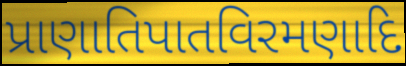
પ્રાણાતિપાતવિરમણાદિ